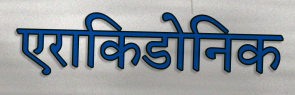
एराकिडोनिक